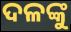
ଦଳଙ୍କୁ